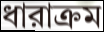
ধারাক্রম